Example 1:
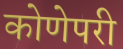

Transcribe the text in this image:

कोणेपरी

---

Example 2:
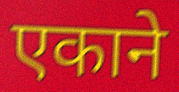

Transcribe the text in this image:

एकाने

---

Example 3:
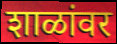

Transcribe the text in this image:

शाळांवर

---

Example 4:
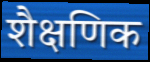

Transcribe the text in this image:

शैक्षणिक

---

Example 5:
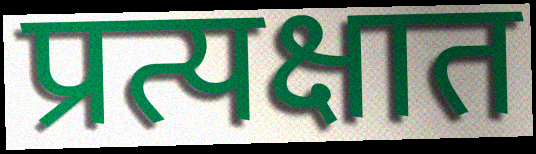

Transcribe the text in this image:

प्रत्यक्षात